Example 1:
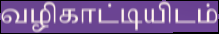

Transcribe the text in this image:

வழிகாட்டியிடம்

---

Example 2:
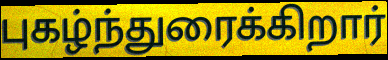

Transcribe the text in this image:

புகழ்ந்துரைக்கிறார்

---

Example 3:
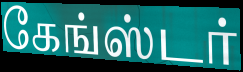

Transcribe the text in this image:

கேங்ஸ்டர்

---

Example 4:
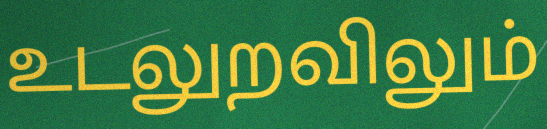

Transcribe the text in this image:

உடலுறவிலும்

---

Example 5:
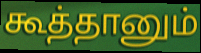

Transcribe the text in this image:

கூத்தானும்